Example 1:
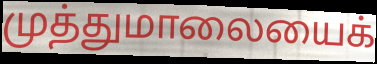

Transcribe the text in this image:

முத்துமாலையைக்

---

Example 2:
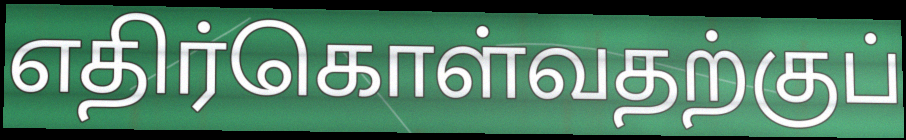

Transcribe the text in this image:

எதிர்கொள்வதற்குப்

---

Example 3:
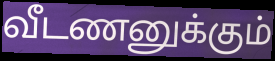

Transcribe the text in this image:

வீடணனுக்கும்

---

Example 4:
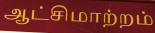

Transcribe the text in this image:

ஆட்சிமாற்றம்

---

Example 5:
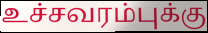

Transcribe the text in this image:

உச்சவரம்புக்கு